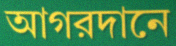
আগরদানে